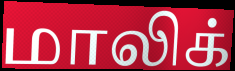
மாலிக்